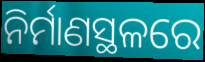
ନିର୍ମାଣସ୍ଥଳରେ